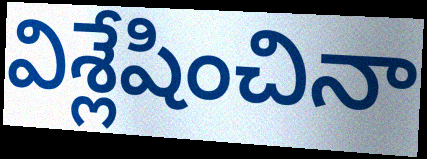
విశ్లేషించినా